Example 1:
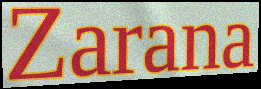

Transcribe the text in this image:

Zarana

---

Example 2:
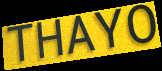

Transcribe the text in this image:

THAYO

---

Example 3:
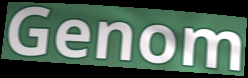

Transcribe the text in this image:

Genom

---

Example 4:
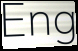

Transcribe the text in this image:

Eng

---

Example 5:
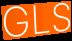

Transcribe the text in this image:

GLS